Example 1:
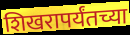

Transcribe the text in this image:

शिखरापर्यंतच्या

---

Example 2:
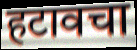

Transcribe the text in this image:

हटावचा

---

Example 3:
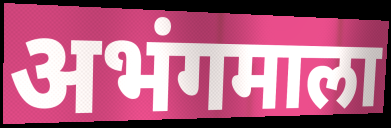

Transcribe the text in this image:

अभंगमाला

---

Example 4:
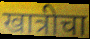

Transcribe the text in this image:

खात्रीचा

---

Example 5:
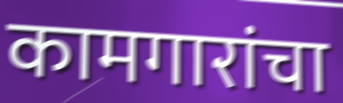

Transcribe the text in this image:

कामगारांचा